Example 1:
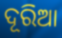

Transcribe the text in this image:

ଦୂରିଆ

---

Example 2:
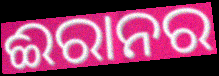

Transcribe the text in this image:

ଈରାନର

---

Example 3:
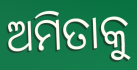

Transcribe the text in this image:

ଅମିତାକୁ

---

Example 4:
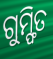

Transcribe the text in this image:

ଗୁମ୍ଫିତ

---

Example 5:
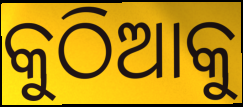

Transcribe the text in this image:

କୁଠିଆକୁ